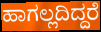
ಹಾಗಲ್ಲದಿದ್ದರೆ